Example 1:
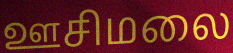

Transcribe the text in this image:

ஊசிமலை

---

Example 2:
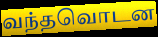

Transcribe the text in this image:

வந்தவொடன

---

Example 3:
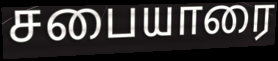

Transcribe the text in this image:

சபையாரை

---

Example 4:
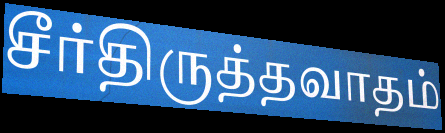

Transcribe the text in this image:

சீர்திருத்தவாதம்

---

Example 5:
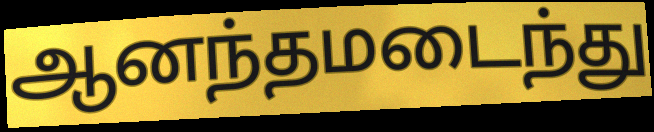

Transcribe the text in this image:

ஆனந்தமடைந்து